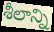
శీలాన్ని